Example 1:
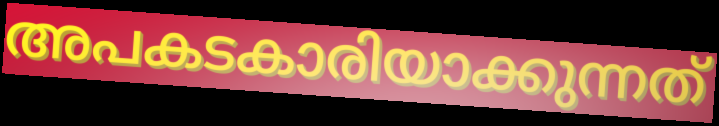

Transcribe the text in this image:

അപകടകാരിയാക്കുന്നത്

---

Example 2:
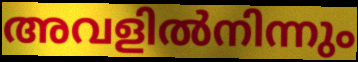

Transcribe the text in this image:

അവളിൽനിന്നും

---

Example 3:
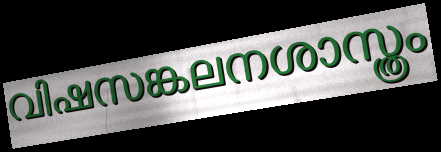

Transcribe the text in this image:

വിഷസങ്കലനശാസ്ത്രം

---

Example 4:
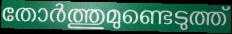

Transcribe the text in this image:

തോർത്തുമുണ്ടെടുത്ത്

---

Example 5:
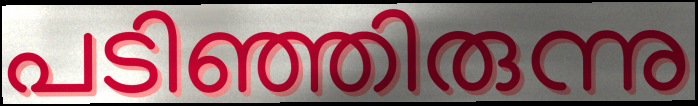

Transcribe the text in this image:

പടിഞ്ഞിരുന്നു